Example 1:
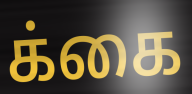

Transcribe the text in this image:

க்கை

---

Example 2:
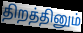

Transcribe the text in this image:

திறத்தினும்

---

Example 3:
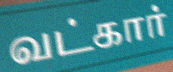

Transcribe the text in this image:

வட்கார்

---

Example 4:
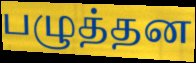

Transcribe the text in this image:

பழுத்தன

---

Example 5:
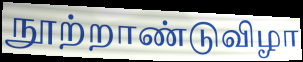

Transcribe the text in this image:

நூற்றாண்டுவிழா